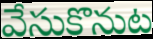
వేసుకొనుట